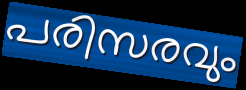
പരിസരവും